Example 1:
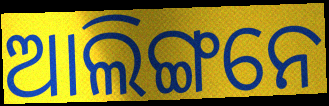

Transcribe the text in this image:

ଆଲିଙ୍ଗନେ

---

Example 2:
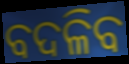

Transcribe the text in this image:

ବଦଳିବ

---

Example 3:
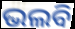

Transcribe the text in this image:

ଭଲବି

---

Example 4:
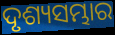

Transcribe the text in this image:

ଦୃଶ୍ୟସମ୍ଭାର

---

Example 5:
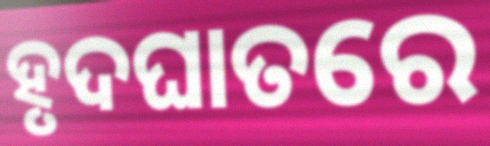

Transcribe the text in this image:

ହୃଦଘାତରେ